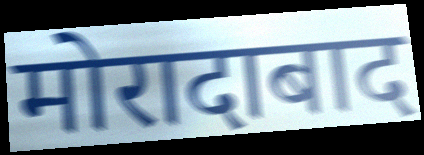
मोरादाबाद